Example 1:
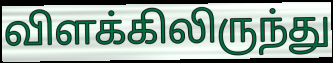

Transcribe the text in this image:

விளக்கிலிருந்து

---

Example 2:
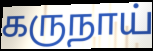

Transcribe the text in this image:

கருநாய்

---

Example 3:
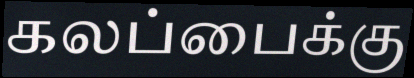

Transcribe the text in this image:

கலப்பைக்கு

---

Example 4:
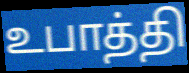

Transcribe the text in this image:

உபாத்தி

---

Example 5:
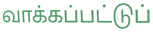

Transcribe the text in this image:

வாக்கப்பட்டுப்